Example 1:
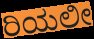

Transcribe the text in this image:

ರಿಯಲೀ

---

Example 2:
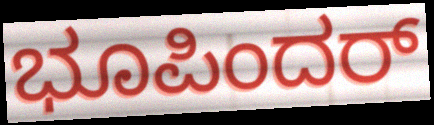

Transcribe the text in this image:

ಭೂಪಿಂದರ್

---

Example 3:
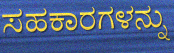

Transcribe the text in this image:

ಸಹಕಾರಗಳನ್ನು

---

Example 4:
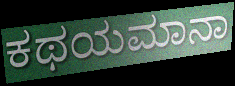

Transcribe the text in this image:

ಕಥಯಮಾನಾ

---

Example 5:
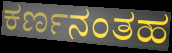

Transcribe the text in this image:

ಕರ್ಣನಂತಹ